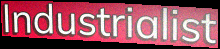
Industrialist